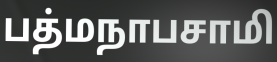
பத்மநாபசாமி